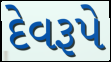
દેવરૂપે